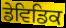
ਡੇਵਿਡਿਕ